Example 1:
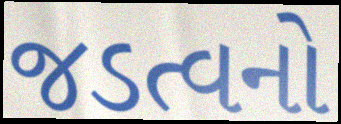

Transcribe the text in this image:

જડત્વનો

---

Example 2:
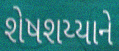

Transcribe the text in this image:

શેષશય્યાને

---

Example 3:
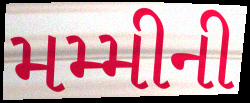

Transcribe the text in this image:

મમ્મીની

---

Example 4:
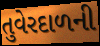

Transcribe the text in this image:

તુવેરદાળની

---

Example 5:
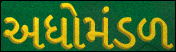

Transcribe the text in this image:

અધોમંડળ